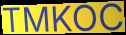
TMKOC